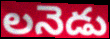
లనెడు